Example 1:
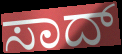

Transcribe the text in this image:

ಸಾದ್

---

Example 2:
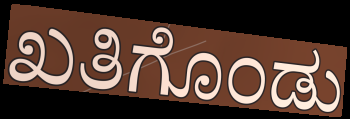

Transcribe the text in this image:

ಖತಿಗೊಂಡು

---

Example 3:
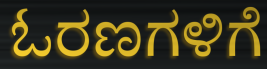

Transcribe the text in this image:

ಓರಣಗಳಿಗೆ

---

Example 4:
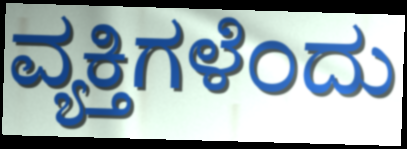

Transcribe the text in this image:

ವ್ಯಕ್ತಿಗಳೆಂದು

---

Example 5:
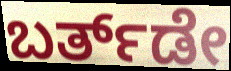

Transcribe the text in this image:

ಬರ್ತ್‌ಡೇ